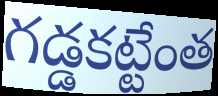
గడ్డకట్టేంత